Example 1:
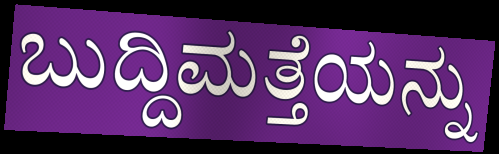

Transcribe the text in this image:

ಬುದ್ದಿಮತ್ತೆಯನ್ನು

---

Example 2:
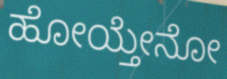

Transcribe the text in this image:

ಹೋಯ್ತೇನೋ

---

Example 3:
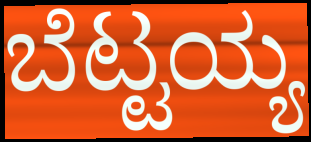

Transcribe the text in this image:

ಬೆಟ್ಟಯ್ಯ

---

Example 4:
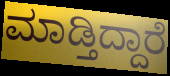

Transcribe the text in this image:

ಮಾಡ್ತಿದ್ದಾರೆ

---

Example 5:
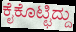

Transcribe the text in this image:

ಕೈಕೊಟ್ಟಿದ್ದು